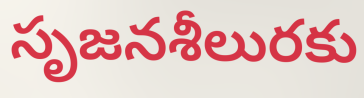
సృజనశీలురకు